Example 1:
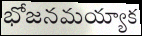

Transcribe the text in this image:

భోజనమయ్యాక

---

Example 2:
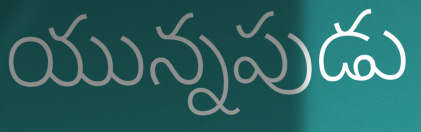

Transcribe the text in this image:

యున్నపుడు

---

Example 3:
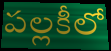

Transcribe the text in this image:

పల్లకీలో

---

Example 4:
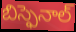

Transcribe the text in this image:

బిస్ఫెనాల్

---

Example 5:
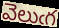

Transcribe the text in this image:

వెలుఁగ